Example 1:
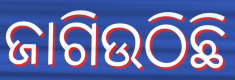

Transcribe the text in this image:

ଜାଗିଉଠିଛି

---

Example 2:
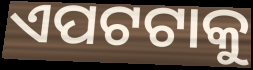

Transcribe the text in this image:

ଏପଟଟାକୁ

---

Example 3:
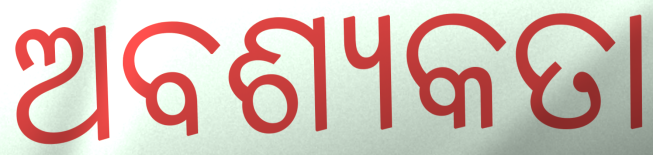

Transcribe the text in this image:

ଅବଶ୍ୟକତା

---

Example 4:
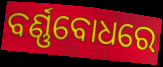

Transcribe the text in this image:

ବର୍ଣ୍ଣବୋଧରେ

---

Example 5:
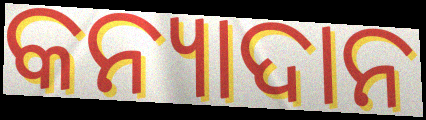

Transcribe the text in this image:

କନ୍ୟାଦାନ